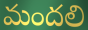
మందలి